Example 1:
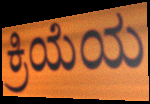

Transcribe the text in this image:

ಕ್ರಿಯೆಯ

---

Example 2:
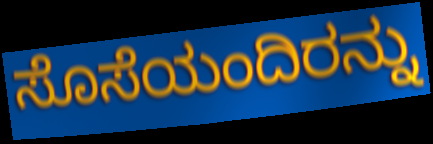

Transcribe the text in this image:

ಸೊಸೆಯಂದಿರನ್ನು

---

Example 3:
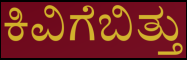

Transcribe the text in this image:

ಕಿವಿಗೆಬಿತ್ತು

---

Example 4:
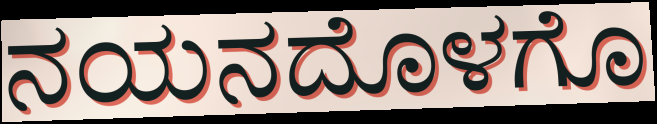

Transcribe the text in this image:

ನಯನದೊಳಗೊ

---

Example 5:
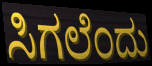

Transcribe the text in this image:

ಸಿಗಲೆಂದು